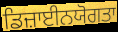
ਡਿਜ਼ਾਈਨਯੋਗਤਾ